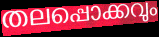
തലപ്പൊക്കവും